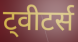
ट्वीटर्स